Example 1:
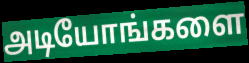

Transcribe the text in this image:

அடியோங்களை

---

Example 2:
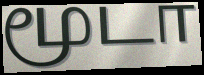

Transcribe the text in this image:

மூடா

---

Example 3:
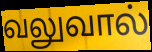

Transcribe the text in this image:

வலுவால்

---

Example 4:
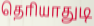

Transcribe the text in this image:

தெரியாதுடி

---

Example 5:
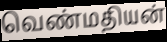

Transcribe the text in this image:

வெண்மதியன்